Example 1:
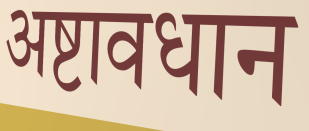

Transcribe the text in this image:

अष्टावधान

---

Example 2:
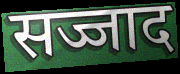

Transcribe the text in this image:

सज्जाद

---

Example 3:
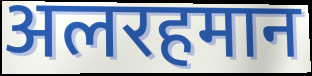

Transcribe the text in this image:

अलरहमान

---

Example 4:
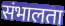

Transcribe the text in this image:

संभालता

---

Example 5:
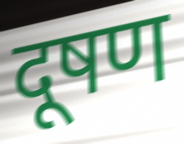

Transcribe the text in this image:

दूषण